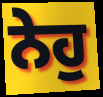
ਨੇਹੁ